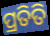
ପ୍ରତିତି